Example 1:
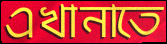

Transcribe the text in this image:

এখানাতে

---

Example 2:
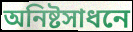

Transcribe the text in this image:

অনিষ্টসাধনে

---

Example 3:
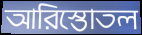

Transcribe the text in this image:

আরিস্তোতল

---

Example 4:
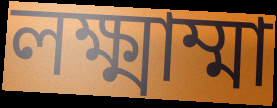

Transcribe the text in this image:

লক্ষ্মাম্মা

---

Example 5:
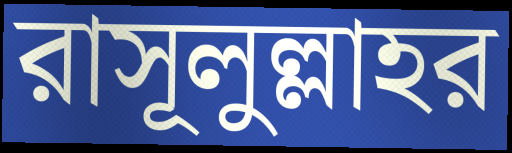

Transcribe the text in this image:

রাসূলুল্লাহর